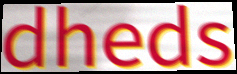
dheds